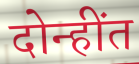
दोन्हींत